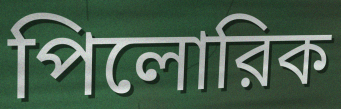
পিলোরিক